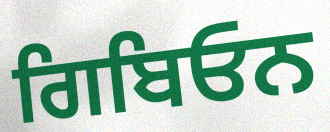
ਗਿਬਿਓਨ